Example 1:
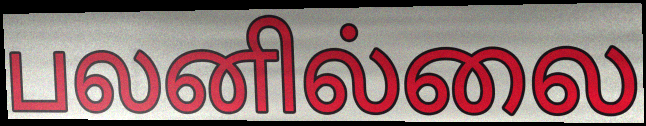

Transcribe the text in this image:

பலனில்லை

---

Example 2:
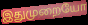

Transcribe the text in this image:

இதுமுறையோ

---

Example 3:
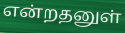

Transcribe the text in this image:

என்றதனுள்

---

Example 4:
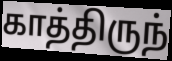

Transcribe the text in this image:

காத்திருந்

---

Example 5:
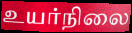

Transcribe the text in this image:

உயர்நிலை